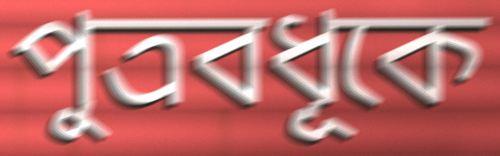
পুত্রবধূকে